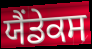
ਯੈਂਡੇਕਸ